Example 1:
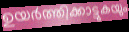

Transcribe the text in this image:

ഉയർത്തിക്കാട്ടുകയും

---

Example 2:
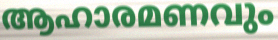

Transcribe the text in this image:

ആഹാരമണവും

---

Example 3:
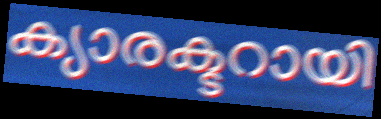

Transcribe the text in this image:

ക്യാരക്ടറായി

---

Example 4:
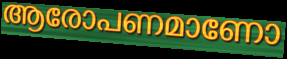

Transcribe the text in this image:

ആരോപണമാണോ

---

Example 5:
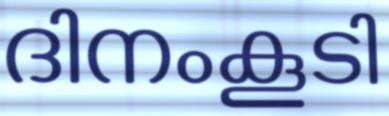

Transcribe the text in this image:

ദിനംകൂടി